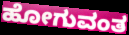
ಹೋಗುವಂತ